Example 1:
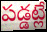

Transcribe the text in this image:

పడ్డట్లే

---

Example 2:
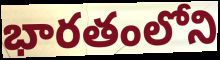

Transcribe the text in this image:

భారతంలోని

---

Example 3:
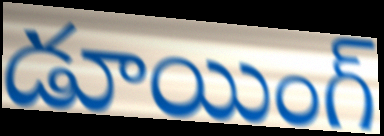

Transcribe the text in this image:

డూయింగ్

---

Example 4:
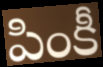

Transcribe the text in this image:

పింకీ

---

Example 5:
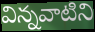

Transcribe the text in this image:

విన్నవాటిని